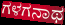
ಗಳಗನಾಥ